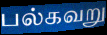
பல்கவறு